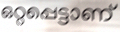
ഒറ്റപ്പെട്ടാണ്